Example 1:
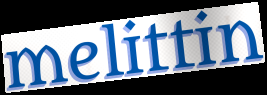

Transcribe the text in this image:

melittin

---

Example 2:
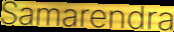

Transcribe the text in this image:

Samarendra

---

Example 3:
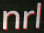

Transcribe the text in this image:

nrl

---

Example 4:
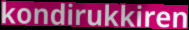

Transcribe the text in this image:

kondirukkiren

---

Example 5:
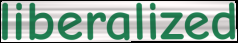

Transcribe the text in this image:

liberalized